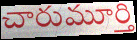
చారుమూర్తి